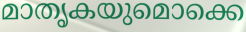
മാതൃകയുമൊക്കെ